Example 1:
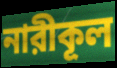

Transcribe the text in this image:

নারীকূল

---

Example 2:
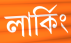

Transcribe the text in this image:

লার্কিং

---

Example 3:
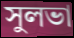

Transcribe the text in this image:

সুলভা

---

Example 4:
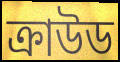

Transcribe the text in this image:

ক্রাউড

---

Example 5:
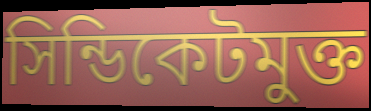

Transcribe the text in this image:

সিন্ডিকেটমুক্ত